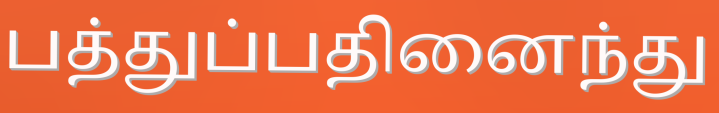
பத்துப்பதினைந்து